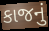
કાજનું